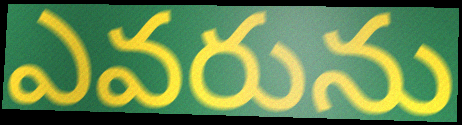
ఎవరును